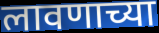
लावणाच्या